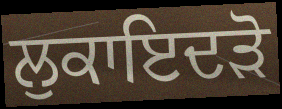
ਲੁਕਾਇਦੜੋ